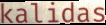
kalidas